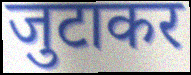
जुटाकर